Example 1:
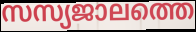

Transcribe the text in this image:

സസ്യജാലത്തെ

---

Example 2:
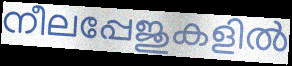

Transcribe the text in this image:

നീലപ്പേജുകളിൽ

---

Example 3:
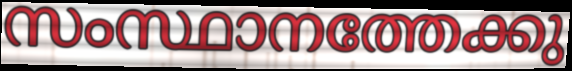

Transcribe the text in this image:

സംസ്ഥാനത്തേക്കു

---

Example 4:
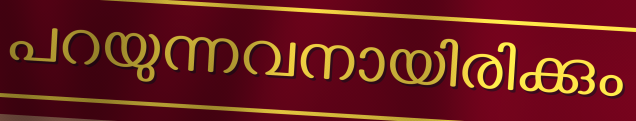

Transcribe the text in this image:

പറയുന്നവനായിരിക്കും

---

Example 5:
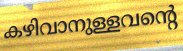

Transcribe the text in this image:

കഴിവാനുള്ളവന്റെ